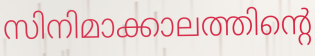
സിനിമാക്കാലത്തിന്റെ